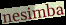
nesimba